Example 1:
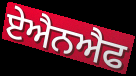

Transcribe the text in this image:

ਏਐਨਐਫ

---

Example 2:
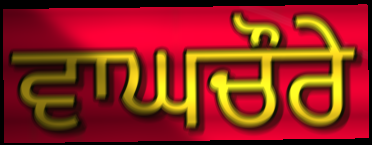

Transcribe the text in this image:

ਵਾਘਚੌਰੇ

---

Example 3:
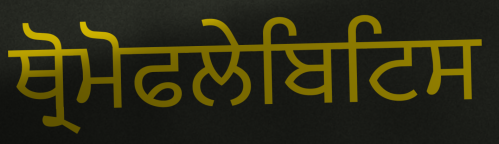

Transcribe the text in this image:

ਥ੍ਰੋਮੋਫਲੇਬਿਟਿਸ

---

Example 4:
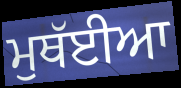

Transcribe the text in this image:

ਮੁਥੱਈਆ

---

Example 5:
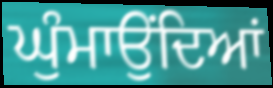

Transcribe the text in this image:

ਘੁੰਮਾਉਂਦਿਆਂ